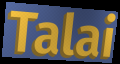
Talai